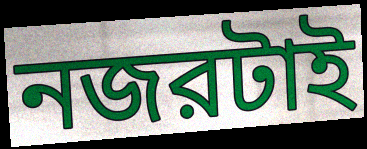
নজরটাই